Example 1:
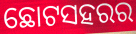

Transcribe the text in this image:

ଛୋଟସହରର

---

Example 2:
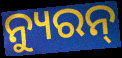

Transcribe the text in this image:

ନ୍ୟୁରନ୍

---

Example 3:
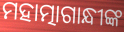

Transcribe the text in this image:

ମହାତ୍ମାଗାନ୍ଧୀଙ୍କ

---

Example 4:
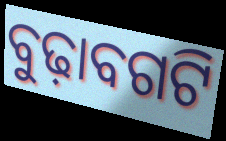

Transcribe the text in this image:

ବୁଢ଼ାବଗଟି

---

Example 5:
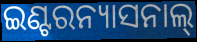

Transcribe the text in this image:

ଇଣ୍ଟରନ୍ୟାସନାଲ୍